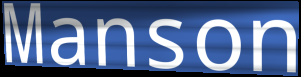
Manson